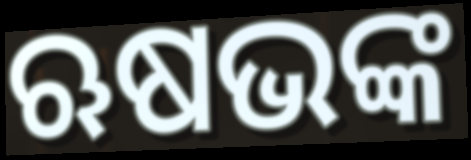
ଋଷଭଙ୍କ